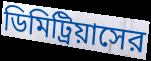
ডিমিট্রিয়াসের